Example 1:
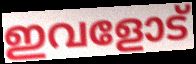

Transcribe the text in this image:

ഇവളോട്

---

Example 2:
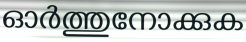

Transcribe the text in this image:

ഓർത്തുനോക്കുക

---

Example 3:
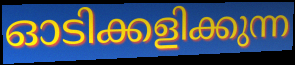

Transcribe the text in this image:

ഓടിക്കളിക്കുന്ന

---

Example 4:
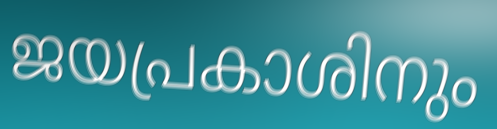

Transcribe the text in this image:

ജയപ്രകാശിനും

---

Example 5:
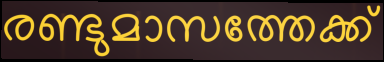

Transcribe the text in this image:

രണ്ടുമാസത്തേക്ക്